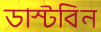
ডাস্টবিন